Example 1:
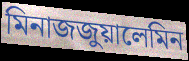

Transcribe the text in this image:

মিনাজজুয়ালেমিন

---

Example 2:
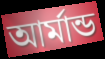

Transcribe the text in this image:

আর্মান্ড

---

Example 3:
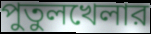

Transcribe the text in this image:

পুতুলখেলার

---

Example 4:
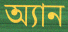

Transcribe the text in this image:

অ্যান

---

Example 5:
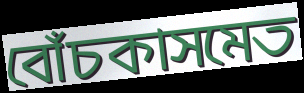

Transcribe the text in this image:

বোঁচকাসমেত